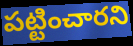
పట్టించారని